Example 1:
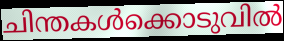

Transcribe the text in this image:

ചിന്തകൾക്കൊടുവിൽ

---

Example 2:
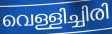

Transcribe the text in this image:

വെള്ളിച്ചിരി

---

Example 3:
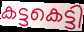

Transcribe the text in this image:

കട്ടകെട്ടി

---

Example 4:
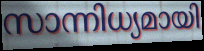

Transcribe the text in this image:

സാന്നിധ്യമായി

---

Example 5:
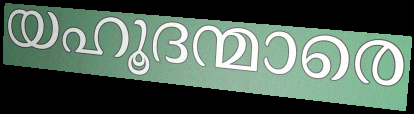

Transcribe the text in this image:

യഹൂദന്മാരെ